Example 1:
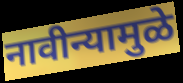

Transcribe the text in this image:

नावीन्यामुळे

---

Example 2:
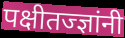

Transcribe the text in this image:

पक्षीतज्ज्ञांनी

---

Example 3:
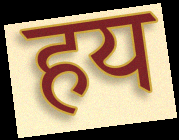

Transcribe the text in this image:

हय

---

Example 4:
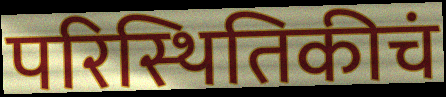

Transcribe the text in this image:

परिस्थितिकीचं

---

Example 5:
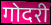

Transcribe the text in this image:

गोदरी